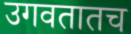
उगवतातच